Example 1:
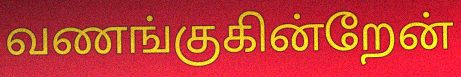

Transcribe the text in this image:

வணங்குகின்றேன்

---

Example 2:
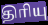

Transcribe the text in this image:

திரியு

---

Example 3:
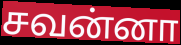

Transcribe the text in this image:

சவன்னா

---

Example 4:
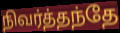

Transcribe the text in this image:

நிவர்த்தந்தே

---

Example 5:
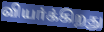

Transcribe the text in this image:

வியர்க்கிறது